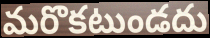
మరొకటుండదు